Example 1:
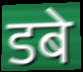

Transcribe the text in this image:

डबे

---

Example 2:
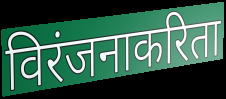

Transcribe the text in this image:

विरंजनाकरिता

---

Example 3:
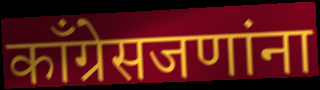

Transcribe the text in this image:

काँग्रेसजणांना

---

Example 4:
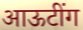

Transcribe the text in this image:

आऊटींग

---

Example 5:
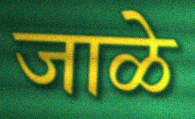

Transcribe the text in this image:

जाळे